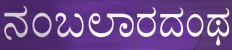
ನಂಬಲಾರದಂಥ